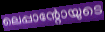
ലെപ്പാന്റോയുടെ